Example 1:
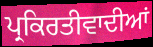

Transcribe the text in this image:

ਪ੍ਰਕਿਰਤੀਵਾਦੀਆਂ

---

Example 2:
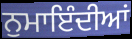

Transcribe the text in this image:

ਨੁਮਾਇੰਦੀਆਂ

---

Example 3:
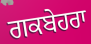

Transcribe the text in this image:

ਗਕਬੇਹਰਾ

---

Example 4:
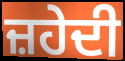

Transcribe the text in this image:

ਜ਼ਹੇਦੀ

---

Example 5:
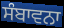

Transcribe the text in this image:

ਸੰਬਾਵਨਾ